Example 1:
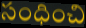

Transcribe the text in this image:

సంధించి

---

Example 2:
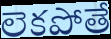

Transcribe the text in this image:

లెకపోతే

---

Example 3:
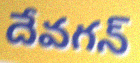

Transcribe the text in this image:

దేవగన్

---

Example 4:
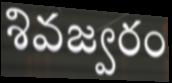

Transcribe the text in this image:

శివజ్వరం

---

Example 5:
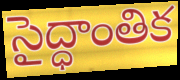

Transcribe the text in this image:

సైద్ధాంతిక